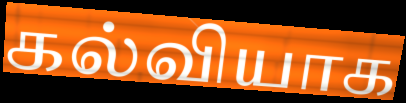
கல்வியாக